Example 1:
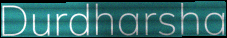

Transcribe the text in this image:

Durdharsha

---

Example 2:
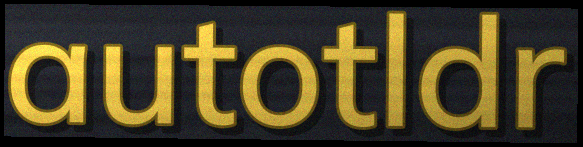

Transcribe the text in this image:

autotldr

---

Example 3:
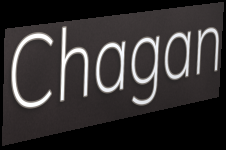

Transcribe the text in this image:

Chagan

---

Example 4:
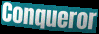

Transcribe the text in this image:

Conqueror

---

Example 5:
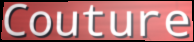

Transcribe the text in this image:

Couture